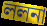
ললনা